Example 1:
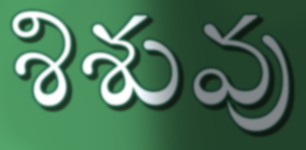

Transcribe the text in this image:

శిశువు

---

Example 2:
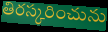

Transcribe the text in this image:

తిరస్కరించును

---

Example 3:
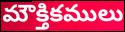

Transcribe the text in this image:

మౌక్తికములు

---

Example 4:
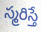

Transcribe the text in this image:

స్మరిస్తే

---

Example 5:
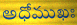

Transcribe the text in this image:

అధోముఖః